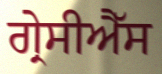
ਗ੍ਰੇਸੀਐੱਸ